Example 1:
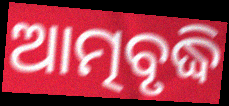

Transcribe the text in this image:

ଆତ୍ମବୃଦ୍ଧି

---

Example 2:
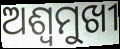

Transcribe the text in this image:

ଅଶ୍ୱମୁଖୀ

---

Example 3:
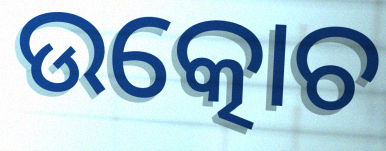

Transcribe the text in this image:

ଉତ୍କୋଚ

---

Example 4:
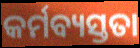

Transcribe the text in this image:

କର୍ମବ୍ୟସ୍ତତା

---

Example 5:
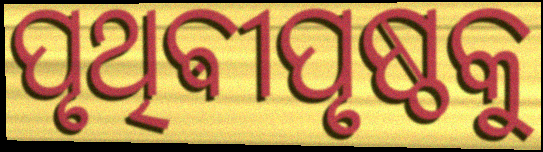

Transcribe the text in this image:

ପୃଥିଵୀପୃଷ୍ଠକୁ